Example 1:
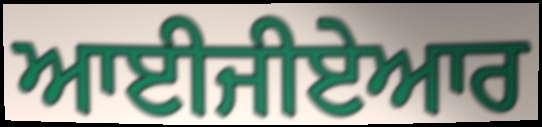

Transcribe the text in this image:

ਆਈਜੀਏਆਰ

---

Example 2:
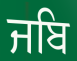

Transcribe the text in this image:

ਜਬਿ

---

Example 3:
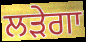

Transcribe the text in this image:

ਲੜੇਗਾ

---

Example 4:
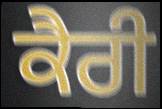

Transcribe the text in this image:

ਕੈਰੀ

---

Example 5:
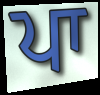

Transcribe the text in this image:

ਪਾ